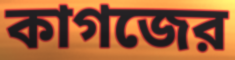
কাগজের